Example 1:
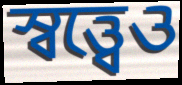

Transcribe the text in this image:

স্বত্ত্বেও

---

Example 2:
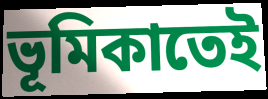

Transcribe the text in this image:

ভূমিকাতেই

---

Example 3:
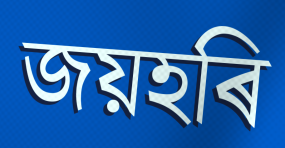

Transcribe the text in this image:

জয়হৰি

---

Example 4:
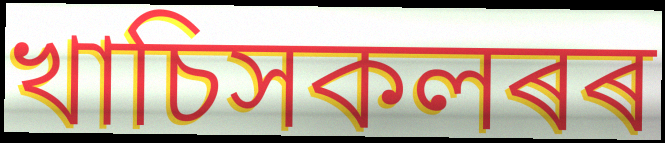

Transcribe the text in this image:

খাচিসকলৰৰ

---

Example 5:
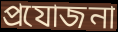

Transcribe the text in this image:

প্ৰযোজনা